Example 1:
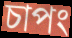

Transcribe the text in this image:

চাপং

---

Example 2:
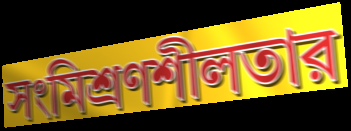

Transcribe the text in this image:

সংমিশ্রণশীলতার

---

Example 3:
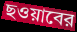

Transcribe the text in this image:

ছওয়াবের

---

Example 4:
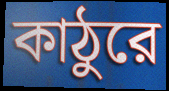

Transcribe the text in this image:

কাঠুরে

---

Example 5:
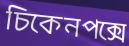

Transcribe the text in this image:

চিকেনপক্সে